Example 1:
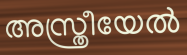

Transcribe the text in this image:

അസ്ത്രീയേൽ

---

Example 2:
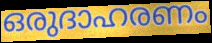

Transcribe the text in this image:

ഒരുദാഹരണം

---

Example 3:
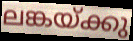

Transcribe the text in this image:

ലങ്കയ്ക്കു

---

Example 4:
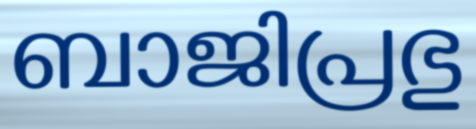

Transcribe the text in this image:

ബാജിപ്രഭു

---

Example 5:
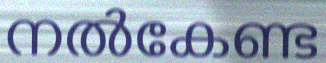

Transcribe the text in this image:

നൽകേണ്ട